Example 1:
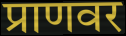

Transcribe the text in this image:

प्राणवर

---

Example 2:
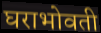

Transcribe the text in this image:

घराभोवती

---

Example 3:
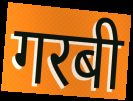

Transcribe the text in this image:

गरबी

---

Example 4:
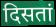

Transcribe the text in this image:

दिसतां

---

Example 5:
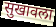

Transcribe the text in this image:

सुखावला